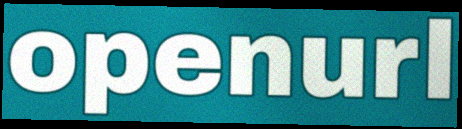
openurl